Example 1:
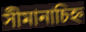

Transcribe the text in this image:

সীমানাচিহ্ন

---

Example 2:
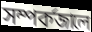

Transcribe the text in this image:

সম্পর্কজালে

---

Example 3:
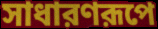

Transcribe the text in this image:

সাধারণরূপে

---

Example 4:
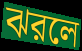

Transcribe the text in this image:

ঝরলে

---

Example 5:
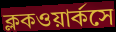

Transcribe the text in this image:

ক্লকওয়ার্কসে